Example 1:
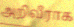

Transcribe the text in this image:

அறிவீராக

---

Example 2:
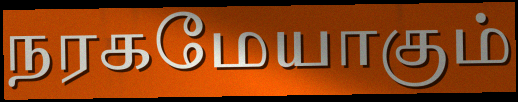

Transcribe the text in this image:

நரகமேயாகும்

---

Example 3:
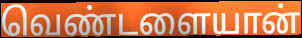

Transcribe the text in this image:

வெண்டளையான்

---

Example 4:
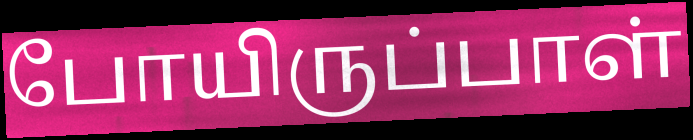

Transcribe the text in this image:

போயிருப்பாள்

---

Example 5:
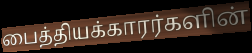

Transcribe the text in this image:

பைத்தியக்காரர்களின்